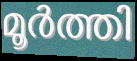
മൂർത്തി